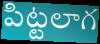
పిట్టలాగ